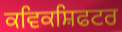
ਕਵਿਕਸ਼ਿਫਟਰ